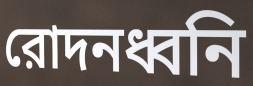
রোদনধ্বনি